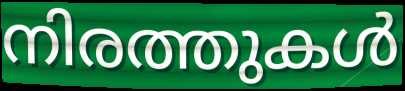
നിരത്തുകൾ